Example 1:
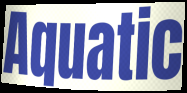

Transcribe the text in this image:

Aquatic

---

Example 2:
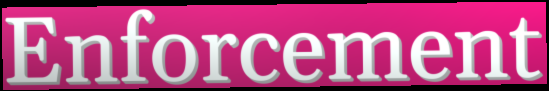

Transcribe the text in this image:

Enforcement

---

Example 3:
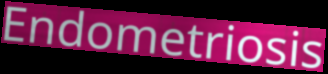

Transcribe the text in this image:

Endometriosis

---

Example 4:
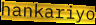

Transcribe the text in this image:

hankariyo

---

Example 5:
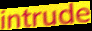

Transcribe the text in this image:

intrude